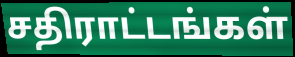
சதிராட்டங்கள்